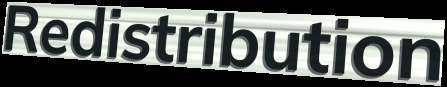
Redistribution